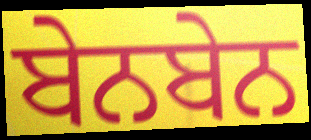
ਬੇਨਬੇਨ